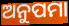
ଅନୁପମା